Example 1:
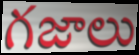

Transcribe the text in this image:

గజాలు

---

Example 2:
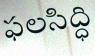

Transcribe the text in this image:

ఫలసిద్ధి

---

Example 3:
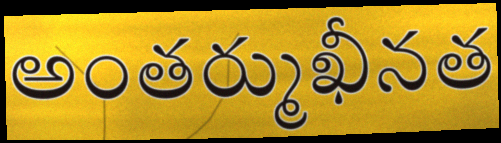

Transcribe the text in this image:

అంతర్ముఖీనత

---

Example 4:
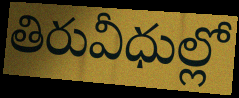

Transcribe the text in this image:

తిరువీధుల్లో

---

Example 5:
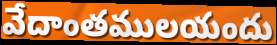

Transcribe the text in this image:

వేదాంతములయందు